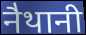
नैथानी